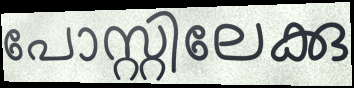
പോസ്റ്റിലേക്കു